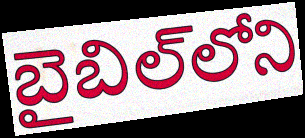
బైబిల్‌లోని